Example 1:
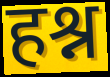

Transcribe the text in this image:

हश्न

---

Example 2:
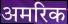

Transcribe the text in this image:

अमरिक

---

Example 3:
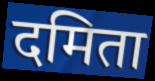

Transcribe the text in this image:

दमिता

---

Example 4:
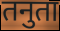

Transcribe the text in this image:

तनुता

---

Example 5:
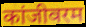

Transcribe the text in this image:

कांजीवरम